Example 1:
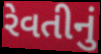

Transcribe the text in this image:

રેવતીનું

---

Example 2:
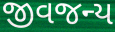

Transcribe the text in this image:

જીવજન્ય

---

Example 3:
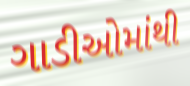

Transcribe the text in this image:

ગાડીઓમાંથી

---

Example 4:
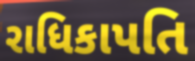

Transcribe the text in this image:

રાધિકાપતિ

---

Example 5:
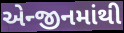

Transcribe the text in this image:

એન્જીનમાંથી